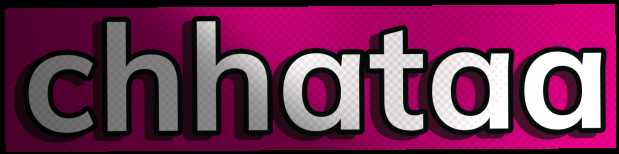
chhataa